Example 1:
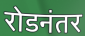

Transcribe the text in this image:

रोडनंतर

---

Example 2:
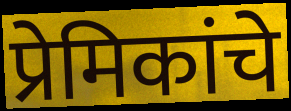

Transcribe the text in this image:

प्रेमिकांचे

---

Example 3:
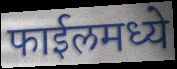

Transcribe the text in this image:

फाईलमध्ये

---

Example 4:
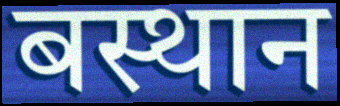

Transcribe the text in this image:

बस्थान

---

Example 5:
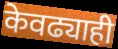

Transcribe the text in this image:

केवढ्याही